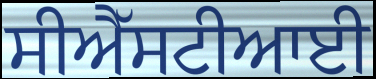
ਸੀਐੱਸਟੀਆਈ